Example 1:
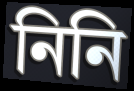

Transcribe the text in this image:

নিনি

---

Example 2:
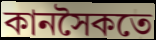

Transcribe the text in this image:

কানসৈকতে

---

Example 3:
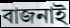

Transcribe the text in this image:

বাজনাই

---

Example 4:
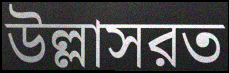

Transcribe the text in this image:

উল্লাসরত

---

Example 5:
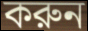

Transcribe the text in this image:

করুন